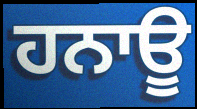
ਹਨਾਊ